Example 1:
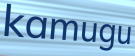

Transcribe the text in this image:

kamugu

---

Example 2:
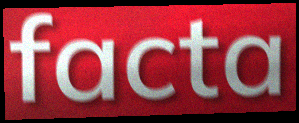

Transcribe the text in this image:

facta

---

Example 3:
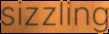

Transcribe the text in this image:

sizzling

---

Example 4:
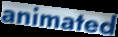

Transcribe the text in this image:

animated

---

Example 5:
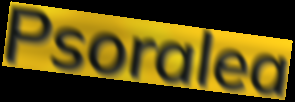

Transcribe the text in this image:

Psoralea